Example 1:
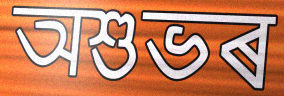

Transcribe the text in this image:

অশুভৰ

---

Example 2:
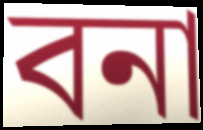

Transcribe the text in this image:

বনা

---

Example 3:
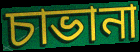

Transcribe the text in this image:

চাভানা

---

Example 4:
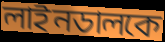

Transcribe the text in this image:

লাইনডালকে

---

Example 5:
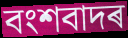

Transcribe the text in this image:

বংশবাদৰ